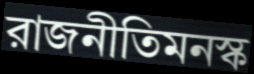
রাজনীতিমনস্ক